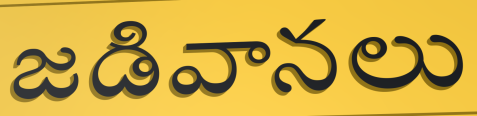
జడివానలు